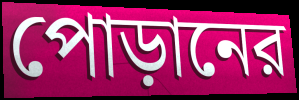
পোড়ানের